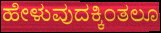
ಹೇಳುವುದಕ್ಕಿಂತಲೂ